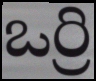
ఒర్రి